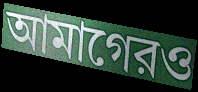
আমাগেরও